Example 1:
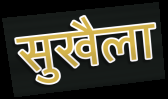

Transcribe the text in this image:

सुखैला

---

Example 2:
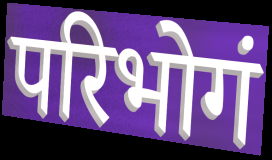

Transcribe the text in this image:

परिभोगं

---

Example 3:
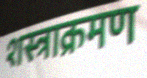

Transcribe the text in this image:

शस्त्राक्रमण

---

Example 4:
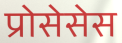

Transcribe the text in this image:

प्रोसेसेस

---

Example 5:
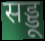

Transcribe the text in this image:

सड्डू